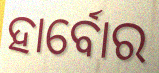
ହାର୍ବୋର